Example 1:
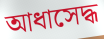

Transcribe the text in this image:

আধাসেদ্ধ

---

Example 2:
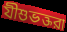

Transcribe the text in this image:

যীশুভক্তরা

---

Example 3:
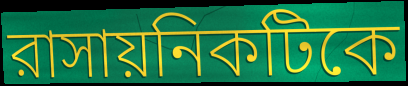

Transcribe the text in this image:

রাসায়নিকটিকে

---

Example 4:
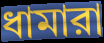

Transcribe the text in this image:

ধামারা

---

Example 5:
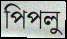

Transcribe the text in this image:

পিপলু